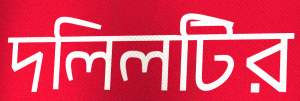
দলিলটির